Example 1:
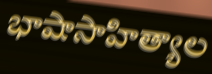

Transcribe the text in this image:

భాషాసాహిత్యాల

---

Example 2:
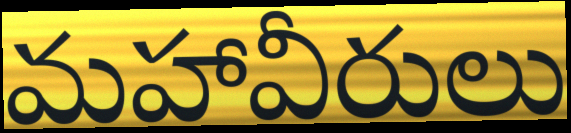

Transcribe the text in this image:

మహావీరులు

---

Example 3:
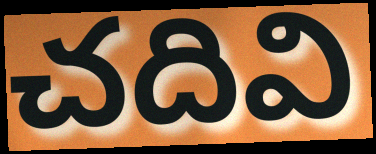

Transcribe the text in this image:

చదివి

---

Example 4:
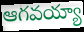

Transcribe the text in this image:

ఆగవయ్యా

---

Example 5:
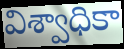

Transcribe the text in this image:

విశ్వాధికా